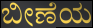
ಬೀಣೆಯ